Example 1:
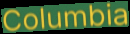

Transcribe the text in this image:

Columbia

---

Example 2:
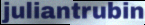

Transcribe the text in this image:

juliantrubin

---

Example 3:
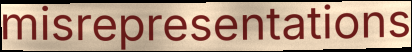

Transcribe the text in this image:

misrepresentations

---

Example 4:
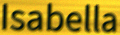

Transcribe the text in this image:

Isabella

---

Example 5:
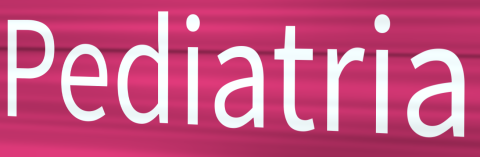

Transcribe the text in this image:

Pediatria